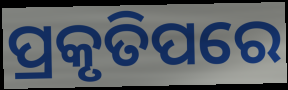
ପ୍ରକୃତିପରେ